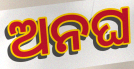
ଅନଘ